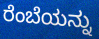
ರೆಂಬೆಯನ್ನು